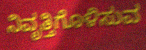
ನಿವೃತ್ತಿಗೊಳಿಸುವ